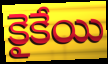
కైకేయి